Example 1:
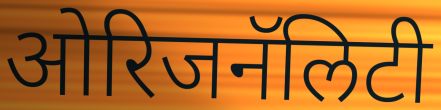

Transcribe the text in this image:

ओरिजनॅलिटी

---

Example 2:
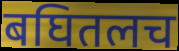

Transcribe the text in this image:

बघितलच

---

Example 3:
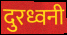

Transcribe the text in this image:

दुरध्वनी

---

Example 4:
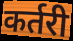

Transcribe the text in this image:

कर्तरी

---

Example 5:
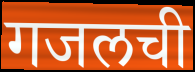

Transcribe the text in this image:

गजलची